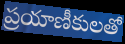
ప్రయాణీకులతో